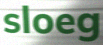
sloeg